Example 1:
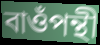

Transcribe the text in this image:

বাওঁপন্থী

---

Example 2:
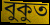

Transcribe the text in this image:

বুকুত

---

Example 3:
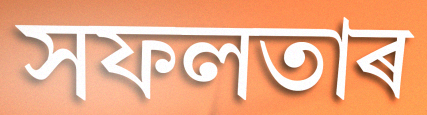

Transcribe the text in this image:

সফলতাৰ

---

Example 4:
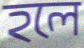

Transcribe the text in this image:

হলে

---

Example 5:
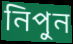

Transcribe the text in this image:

নিপুন